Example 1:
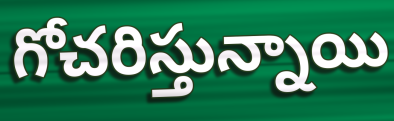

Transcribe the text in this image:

గోచరిస్తున్నాయి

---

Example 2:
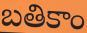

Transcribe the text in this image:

బతికాం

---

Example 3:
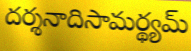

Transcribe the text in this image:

దర్శనాదిసామర్థ్యమ్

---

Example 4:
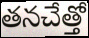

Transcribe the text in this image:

తనచేత్తో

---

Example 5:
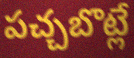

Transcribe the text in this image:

పచ్చబొట్లే